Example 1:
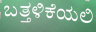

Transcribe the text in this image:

ಬತ್ತಳಿಕೆಯಲಿ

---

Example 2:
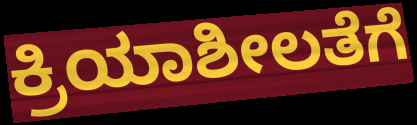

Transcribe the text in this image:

ಕ್ರಿಯಾಶೀಲತೆಗೆ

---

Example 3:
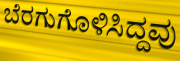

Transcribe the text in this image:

ಬೆರಗುಗೊಳಿಸಿದ್ದವು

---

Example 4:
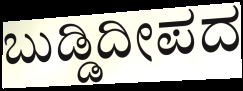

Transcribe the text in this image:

ಬುಡ್ಡಿದೀಪದ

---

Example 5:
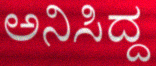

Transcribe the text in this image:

ಅನಿಸಿದ್ದ